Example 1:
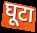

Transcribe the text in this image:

घूटा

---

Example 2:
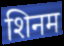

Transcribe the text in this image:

शिनम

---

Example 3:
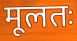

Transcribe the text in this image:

मूलतः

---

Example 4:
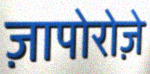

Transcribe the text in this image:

ज़ापोरोज़े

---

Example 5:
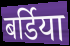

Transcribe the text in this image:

बर्डिया